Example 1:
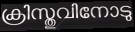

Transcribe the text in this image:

ക്രിസ്തുവിനോടു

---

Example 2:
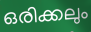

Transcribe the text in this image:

ഒരിക്കലും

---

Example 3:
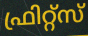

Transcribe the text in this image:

ഫ്രിറ്റ്സ്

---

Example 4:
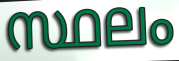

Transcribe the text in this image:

സ്ഥലം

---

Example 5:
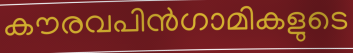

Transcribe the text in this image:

കൗരവപിൻഗാമികളുടെ